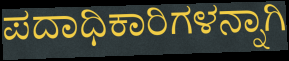
ಪದಾಧಿಕಾರಿಗಳನ್ನಾಗಿ